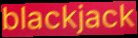
blackjack